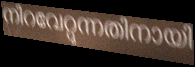
നിറവേറ്റുന്നതിനായി